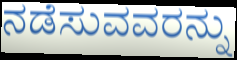
ನಡೆಸುವವರನ್ನು